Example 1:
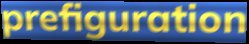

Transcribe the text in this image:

prefiguration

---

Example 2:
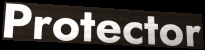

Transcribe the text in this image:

Protector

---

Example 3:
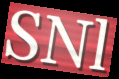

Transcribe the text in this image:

SNl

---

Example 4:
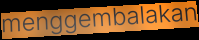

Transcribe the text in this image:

menggembalakan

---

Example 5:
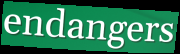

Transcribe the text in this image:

endangers